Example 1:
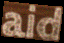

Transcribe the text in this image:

aid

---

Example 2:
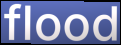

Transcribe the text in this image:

flood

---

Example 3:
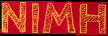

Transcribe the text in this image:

NIMH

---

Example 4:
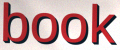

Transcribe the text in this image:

book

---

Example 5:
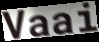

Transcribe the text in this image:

Vaai